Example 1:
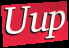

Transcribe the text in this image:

Uup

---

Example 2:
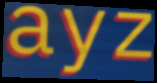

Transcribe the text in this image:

ayz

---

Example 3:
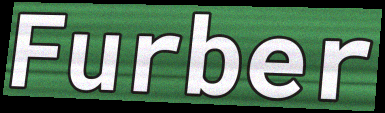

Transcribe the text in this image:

Furber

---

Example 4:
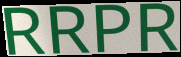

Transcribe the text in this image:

RRPR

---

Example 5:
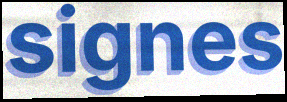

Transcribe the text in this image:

signes